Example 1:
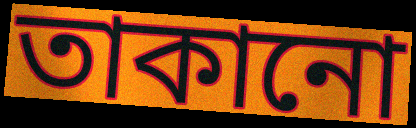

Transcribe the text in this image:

তাকানো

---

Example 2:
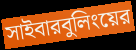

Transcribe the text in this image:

সাইবারবুলিংয়ের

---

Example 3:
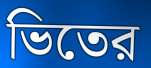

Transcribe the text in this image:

ভিতের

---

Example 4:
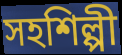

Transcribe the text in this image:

সহশিল্পী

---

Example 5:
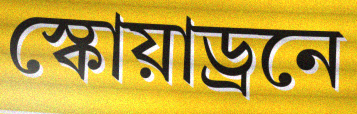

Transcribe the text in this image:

স্কোয়াড্রনে